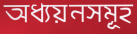
অধ্যয়নসমূহ